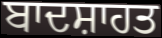
ਬਾਦਸ਼ਾਹਤ